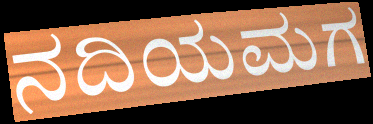
ನದಿಯಮಗ